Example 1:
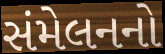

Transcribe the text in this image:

સંમેલનનો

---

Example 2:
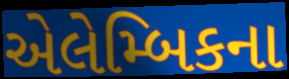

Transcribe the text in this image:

એલેમ્બિકના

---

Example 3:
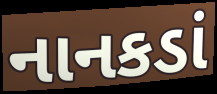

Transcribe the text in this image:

નાનકડાં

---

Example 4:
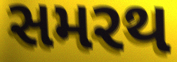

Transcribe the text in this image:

સમરથ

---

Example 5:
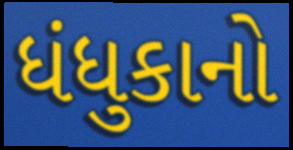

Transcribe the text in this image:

ધંધુકાનો